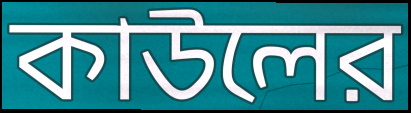
কাউলের